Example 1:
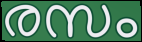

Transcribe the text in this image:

രസം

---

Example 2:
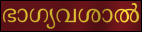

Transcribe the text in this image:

ഭാഗ്യവശാൽ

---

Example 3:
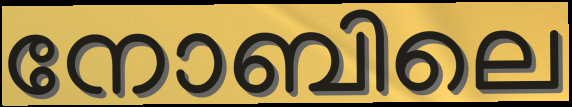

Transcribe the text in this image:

നോബിലെ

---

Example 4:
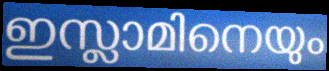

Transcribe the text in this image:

ഇസ്ലാമിനെയും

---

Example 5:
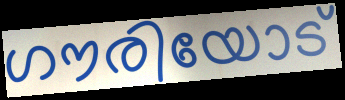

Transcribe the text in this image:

ഗൗരിയോട്